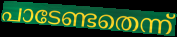
പാടേണ്ടതെന്ന്